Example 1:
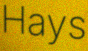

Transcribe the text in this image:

Hays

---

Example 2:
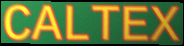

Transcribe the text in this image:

CALTEX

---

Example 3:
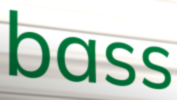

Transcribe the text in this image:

bass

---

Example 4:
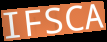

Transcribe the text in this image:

IFSCA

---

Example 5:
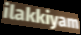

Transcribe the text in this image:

ilakkiyam